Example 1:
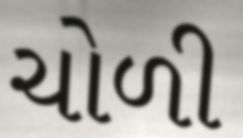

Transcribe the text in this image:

ચોળી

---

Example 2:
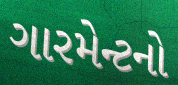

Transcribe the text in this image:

ગારમેન્ટનો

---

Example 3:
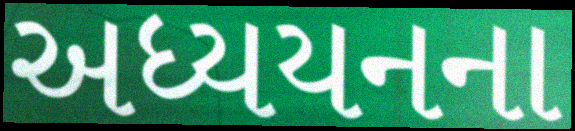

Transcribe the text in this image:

અધ્યયનના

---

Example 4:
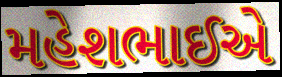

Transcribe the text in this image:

મહેશભાઈએ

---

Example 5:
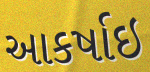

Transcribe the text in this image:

આકર્ષાઇ